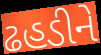
ઢહડીને